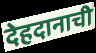
देहदानाची